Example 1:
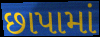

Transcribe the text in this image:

છાપામાં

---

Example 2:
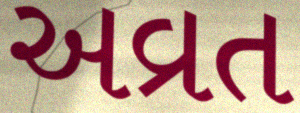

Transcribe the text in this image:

અવ્રત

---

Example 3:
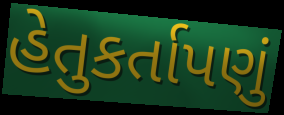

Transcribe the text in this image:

હેતુકર્તાપણું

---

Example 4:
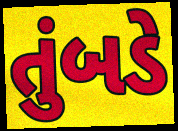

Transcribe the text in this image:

તુંબડે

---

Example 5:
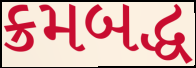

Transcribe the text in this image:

ક્રમબદ્ધ